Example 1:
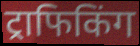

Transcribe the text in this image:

ट्राफिकिंग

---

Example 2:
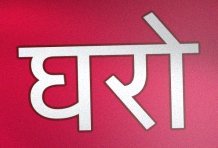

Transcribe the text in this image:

घरो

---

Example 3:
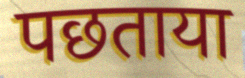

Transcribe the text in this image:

पछताया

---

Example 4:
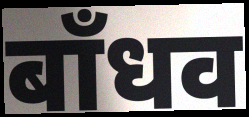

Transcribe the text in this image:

बाँधव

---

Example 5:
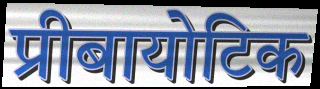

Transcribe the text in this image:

प्रीबायोटिक